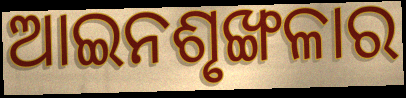
ଆଇନଶୃଙ୍ଖଳାର